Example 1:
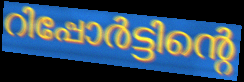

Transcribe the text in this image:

റിപ്പോർട്ടിന്റെ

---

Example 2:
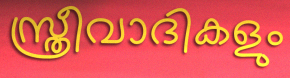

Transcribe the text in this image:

സ്ത്രീവാദികളും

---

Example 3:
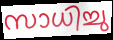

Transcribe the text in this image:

സാധിച്ചു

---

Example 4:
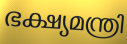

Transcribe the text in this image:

ഭക്ഷ്യമന്ത്രി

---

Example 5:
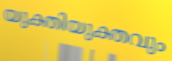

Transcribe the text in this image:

യുക്തിയുക്തവും